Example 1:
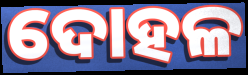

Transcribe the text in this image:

ଦୋହଳ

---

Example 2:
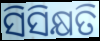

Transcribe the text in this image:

ସିସିକ୍ଷତି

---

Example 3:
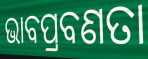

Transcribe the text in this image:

ଭାବପ୍ରବଣତା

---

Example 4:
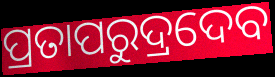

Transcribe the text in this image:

ପ୍ରତାପରୁଦ୍ରଦେବ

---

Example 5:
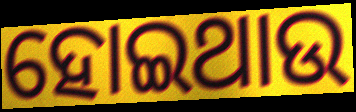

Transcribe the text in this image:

ହୋଇଥାଉ